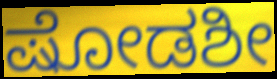
ಷೋಡಶೀ